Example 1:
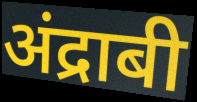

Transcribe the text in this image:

अंद्राबी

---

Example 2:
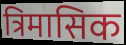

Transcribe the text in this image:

त्रिमासिक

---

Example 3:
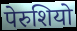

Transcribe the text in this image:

पेरुशियो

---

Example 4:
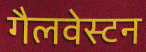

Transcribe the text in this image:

गैलवेस्टन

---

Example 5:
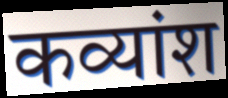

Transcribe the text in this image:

कव्यांश